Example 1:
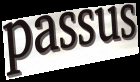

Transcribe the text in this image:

passus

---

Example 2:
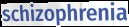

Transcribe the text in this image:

schizophrenia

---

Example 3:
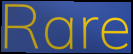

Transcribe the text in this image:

Rare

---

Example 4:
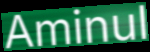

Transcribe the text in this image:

Aminul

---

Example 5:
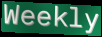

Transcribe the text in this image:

Weekly